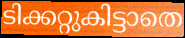
ടിക്കറ്റുകിട്ടാതെ